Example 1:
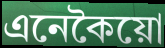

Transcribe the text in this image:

এনেকৈয়ো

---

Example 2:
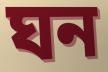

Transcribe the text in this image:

ঘন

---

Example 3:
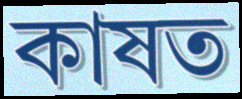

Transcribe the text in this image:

কাষত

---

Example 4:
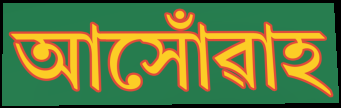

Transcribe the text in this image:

আসোঁৱাহ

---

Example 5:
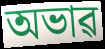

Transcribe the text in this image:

অভাৱ